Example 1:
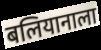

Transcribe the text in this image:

बलियानाला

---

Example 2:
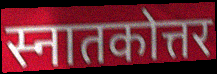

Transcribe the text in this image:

स्नातकोत्तर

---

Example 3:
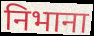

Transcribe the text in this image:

निभाना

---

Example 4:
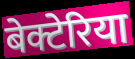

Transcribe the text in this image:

बेक्टेरिया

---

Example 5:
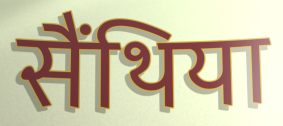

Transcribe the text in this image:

सैंथिया